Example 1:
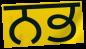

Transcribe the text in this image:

ਨਭ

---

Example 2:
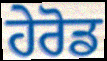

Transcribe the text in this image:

ਹੇਰੋਡ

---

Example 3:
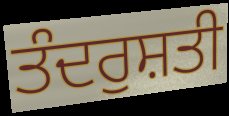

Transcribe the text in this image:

ਤੰਦਰੁਸ਼ਤੀ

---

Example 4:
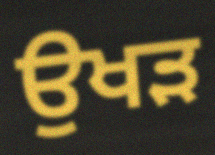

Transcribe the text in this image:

ਉਖੜ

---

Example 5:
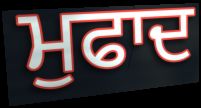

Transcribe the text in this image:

ਮੁਫਾਦ